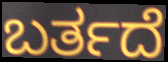
ಬರ್ತದೆ